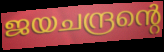
ജയചന്ദ്രന്റെ